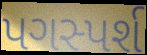
પગસ્પર્શ